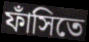
ফাঁসিতে